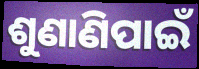
ଶୁଣାଣିପାଇଁ